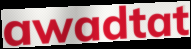
awadtat